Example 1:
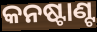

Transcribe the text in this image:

କନଷ୍ଟାଣ୍ଟ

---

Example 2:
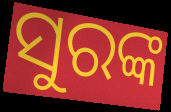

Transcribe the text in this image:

ସୁରଙ୍କ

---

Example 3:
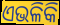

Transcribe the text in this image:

ଏଭଳିକି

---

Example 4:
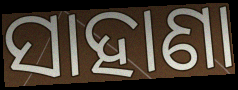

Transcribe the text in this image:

ସାହାଣା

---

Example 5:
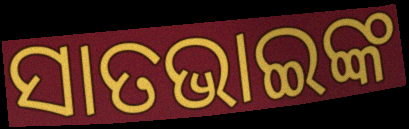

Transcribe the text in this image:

ସାତଭାଇଙ୍କ